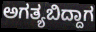
ಅಗತ್ಯಬಿದ್ದಾಗ